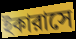
ইকারাসে